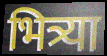
भित्र्या